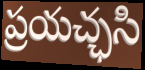
ప్రయచ్ఛసి